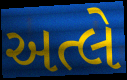
અત્લે